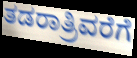
ತಡರಾತ್ರಿವರೆಗೆ